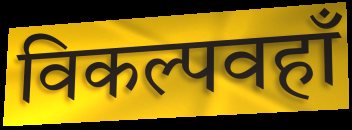
विकल्पवहाँ